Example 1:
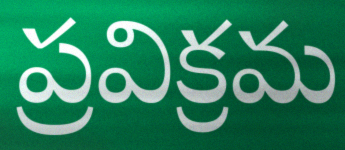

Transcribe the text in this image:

ప్రవిక్రమ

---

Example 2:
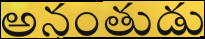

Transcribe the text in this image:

అనంతుడు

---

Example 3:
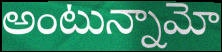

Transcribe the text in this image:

అంటున్నామో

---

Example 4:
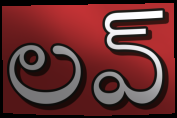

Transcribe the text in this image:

లవ్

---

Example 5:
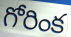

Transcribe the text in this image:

గోరింక